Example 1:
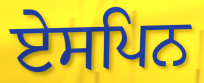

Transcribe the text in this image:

ਏਸਪਿਨ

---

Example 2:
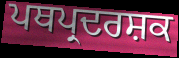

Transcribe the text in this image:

ਪਥਪ੍ਰਦਰਸ਼ਕ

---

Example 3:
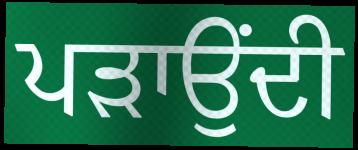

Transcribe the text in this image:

ਪੜਾਉਂਦੀ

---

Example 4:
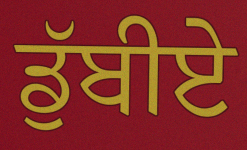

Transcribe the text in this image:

ਡੁੱਬੀਏ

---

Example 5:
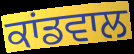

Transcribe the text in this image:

ਕਾਂਡਵਾਲ